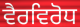
ਵੈਰਵਿਰੋਧ